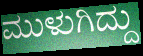
ಮುಳುಗಿದ್ದು